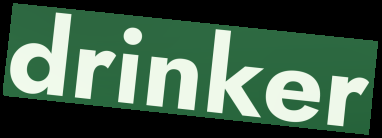
drinker